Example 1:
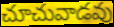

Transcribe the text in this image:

చూచువాడవు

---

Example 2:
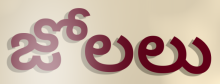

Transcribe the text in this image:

జోలలు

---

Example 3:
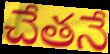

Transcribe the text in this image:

చేతనే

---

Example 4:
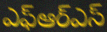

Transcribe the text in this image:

ఎఫ్ఆర్ఎస్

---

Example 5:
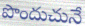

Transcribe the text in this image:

పొందుచునే